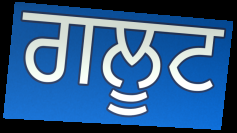
ਗਲੂਟ